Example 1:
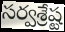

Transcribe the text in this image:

సర్వశ్రేష్ట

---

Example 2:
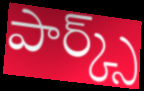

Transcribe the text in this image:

పార్క్స్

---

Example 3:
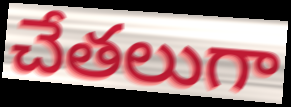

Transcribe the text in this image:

చేతలుగా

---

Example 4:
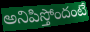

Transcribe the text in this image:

అనిపిస్తోందంటే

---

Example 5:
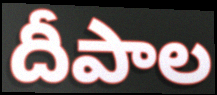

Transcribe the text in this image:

దీపాల